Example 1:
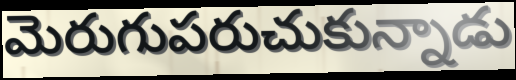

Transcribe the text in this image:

మెరుగుపరుచుకున్నాడు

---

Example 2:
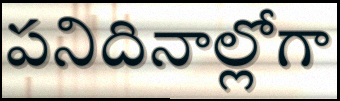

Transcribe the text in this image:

పనిదినాల్లోగా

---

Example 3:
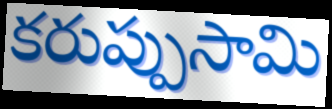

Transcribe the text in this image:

కరుప్పుసామి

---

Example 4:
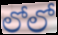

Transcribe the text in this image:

లోలో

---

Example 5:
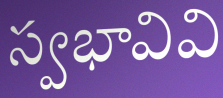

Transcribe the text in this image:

స్వభావివి